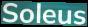
Soleus